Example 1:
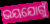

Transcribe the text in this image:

ଭୟଯୋଗୁଁ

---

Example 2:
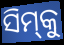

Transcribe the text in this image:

ସିମ୍‌କୁ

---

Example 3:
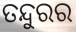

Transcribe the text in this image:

ତନ୍ଦୁରର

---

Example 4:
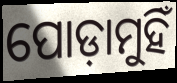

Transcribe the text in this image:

ପୋଡ଼ାମୁହିଁ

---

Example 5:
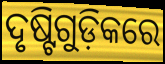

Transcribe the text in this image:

ଦୃଷ୍ଟିଗୁଡ଼ିକରେ